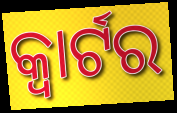
କ୍ଵାର୍ଟର